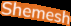
Shemesh